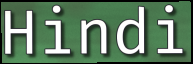
Hindi